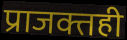
प्राजक्तही